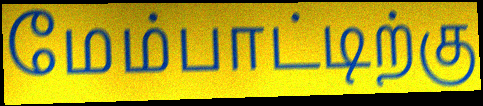
மேம்பாட்டிற்கு